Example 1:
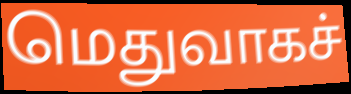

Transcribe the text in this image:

மெதுவாகச்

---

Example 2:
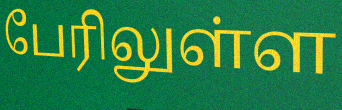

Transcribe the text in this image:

பேரிலுள்ள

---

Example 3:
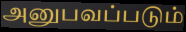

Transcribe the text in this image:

அனுபவப்படும்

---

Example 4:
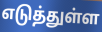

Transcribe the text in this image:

எடுத்துள்ள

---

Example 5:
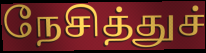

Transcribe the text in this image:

நேசித்துச்